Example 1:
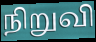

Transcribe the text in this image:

நிறுவி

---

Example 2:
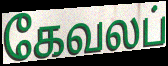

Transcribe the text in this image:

கேவலப்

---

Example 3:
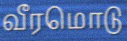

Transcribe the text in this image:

வீரமொடு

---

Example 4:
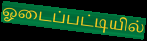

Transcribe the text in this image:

ஓடைப்பட்டியில்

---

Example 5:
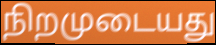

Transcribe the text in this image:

நிறமுடையது